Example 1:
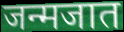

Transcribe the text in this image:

जन्मजात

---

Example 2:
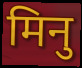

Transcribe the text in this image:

मिनु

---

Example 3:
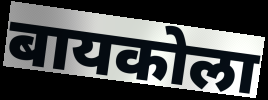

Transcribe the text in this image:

बायकोला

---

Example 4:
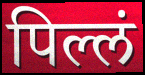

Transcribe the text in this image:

पिल्लं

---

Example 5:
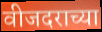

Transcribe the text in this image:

वीजदराच्या